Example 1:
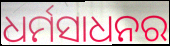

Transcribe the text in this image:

ଧର୍ମସାଧନର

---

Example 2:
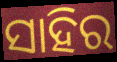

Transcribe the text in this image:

ସାହିର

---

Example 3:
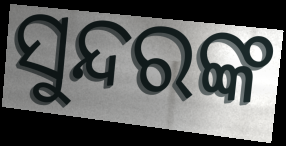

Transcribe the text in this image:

ସୁନ୍ଦରଙ୍କ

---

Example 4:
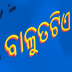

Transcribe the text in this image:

ବାଳୁତଟିଏ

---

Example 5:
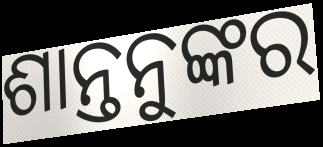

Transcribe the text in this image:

ଶାନ୍ତନୁଙ୍କର